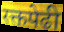
रक्तपेढी